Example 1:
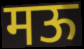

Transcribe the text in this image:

मऊ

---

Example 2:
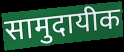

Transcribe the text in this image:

सामुदायीक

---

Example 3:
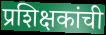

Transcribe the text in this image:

प्रशिक्षकांची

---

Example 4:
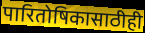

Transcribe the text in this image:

पारितोषिकासाठीही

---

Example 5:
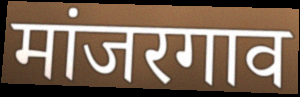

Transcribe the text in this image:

मांजरगाव